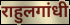
राहुलगांधी